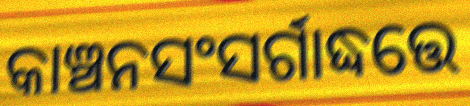
କାଞ୍ଚନସଂସର୍ଗାଦ୍ଧତ୍ତେ